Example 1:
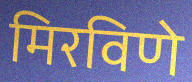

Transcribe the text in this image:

मिरविणे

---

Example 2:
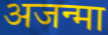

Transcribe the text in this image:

अजन्मा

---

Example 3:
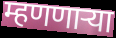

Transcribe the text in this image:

म्हणणाऱ्या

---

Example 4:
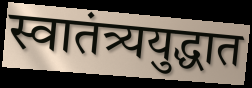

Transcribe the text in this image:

स्वातंत्र्ययुद्धात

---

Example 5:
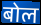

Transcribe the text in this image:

बोल